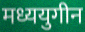
मध्ययुगीन